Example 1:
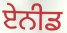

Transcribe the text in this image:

ਏਨੀਡ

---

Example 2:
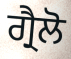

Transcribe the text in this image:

ਗ੍ਰੈਲੋ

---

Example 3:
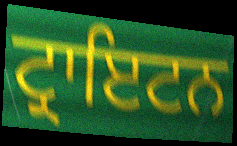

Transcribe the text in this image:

ਟ੍ਰਾਇਟਨ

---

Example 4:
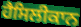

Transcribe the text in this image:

ਹੈਸਿਲੀਕਾਨ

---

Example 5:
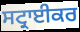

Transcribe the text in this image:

ਸਟ੍ਰਾਈਕਰ